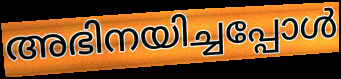
അഭിനയിച്ചപ്പോൾ